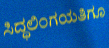
ಸಿದ್ಧಲಿಂಗಯತಿಗೂ